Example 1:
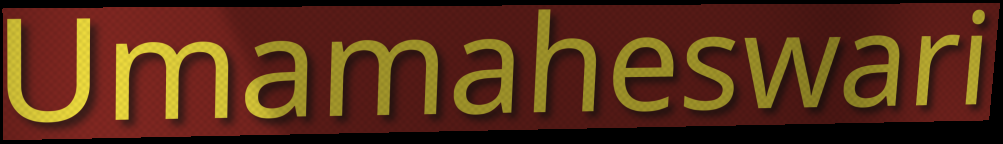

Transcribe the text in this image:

Umamaheswari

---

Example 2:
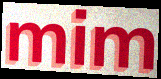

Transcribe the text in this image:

mim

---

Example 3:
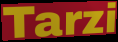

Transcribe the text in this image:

Tarzi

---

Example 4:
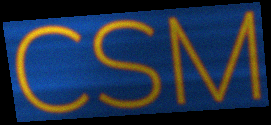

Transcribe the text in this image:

CSM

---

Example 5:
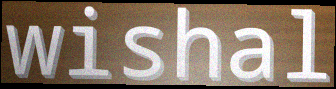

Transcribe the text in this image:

wishal